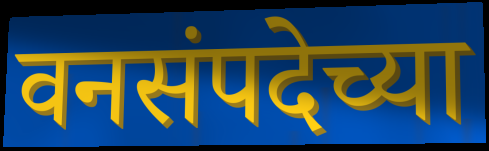
वनसंपदेच्या